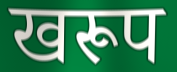
खरूप